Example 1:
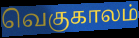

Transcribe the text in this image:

வெகுகாலம்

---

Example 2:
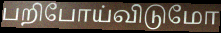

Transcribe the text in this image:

பறிபோய்விடுமோ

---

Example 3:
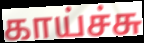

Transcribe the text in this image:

காய்ச்சு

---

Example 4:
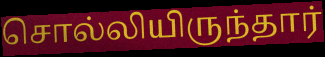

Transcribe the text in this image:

சொல்லியிருந்தார்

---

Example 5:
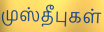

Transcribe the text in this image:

முஸ்தீபுகள்